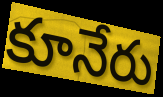
కూనేరు